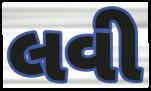
લવી